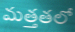
మత్తతలో